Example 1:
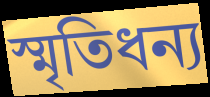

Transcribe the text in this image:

স্মৃতিধন্য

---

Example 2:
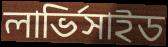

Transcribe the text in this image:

লার্ভিসাইড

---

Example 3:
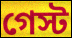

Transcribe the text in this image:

গেস্ট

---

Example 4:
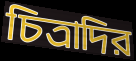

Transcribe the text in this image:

চিত্রাদির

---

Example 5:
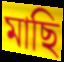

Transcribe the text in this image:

মাছি